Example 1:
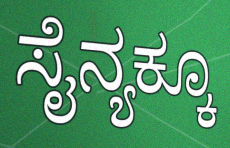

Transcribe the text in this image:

ಸೈನ್ಯಕ್ಕೂ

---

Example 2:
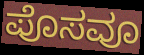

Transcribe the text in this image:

ಪೊಸವೂ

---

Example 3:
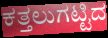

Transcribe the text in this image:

ಕತ್ತಲುಗಟ್ಟಿದ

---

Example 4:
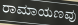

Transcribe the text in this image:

ರಾಮಾಯಣವು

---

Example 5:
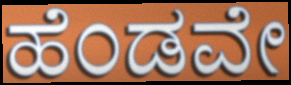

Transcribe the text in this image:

ಹೆಂಡವೇ